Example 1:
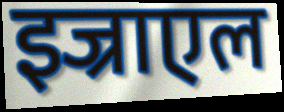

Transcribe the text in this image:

इज्राएल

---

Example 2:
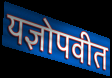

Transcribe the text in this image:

यज्ञोपवीत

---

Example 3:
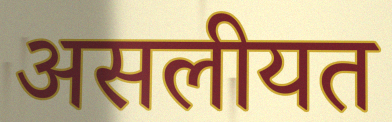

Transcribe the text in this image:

असलीयत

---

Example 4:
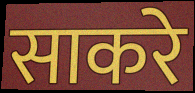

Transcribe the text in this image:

साकरे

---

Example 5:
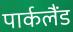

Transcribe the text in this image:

पार्कलैंड